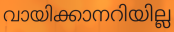
വായിക്കാനറിയില്ല